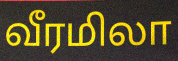
வீரமிலா